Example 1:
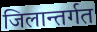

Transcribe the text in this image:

जिलान्तर्गत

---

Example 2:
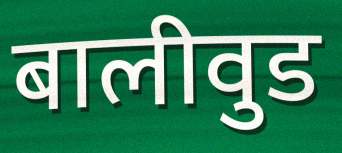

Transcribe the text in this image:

बालीवुड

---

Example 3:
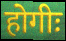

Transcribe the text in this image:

होगीः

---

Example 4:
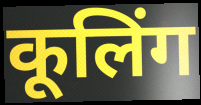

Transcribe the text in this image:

कूलिंग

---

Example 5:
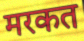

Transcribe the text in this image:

मरकत